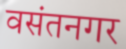
वसंतनगर